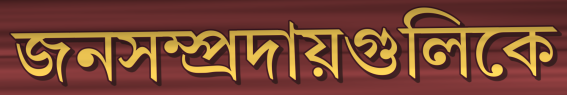
জনসম্প্রদায়গুলিকে